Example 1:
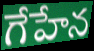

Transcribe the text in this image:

గేహేన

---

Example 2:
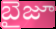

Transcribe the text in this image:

బైజూ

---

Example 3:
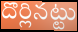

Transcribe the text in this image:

దొర్లినట్టు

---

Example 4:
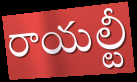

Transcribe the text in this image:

రాయల్టీ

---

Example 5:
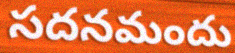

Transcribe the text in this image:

సదనమందు